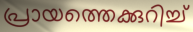
പ്രായത്തെക്കുറിച്ച്